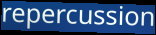
repercussion